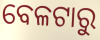
ବେଳଟାରୁ